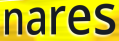
nares